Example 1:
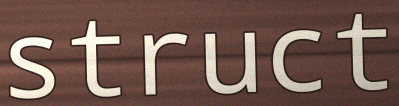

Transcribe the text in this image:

struct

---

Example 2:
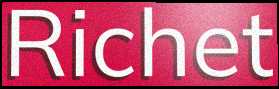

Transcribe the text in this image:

Richet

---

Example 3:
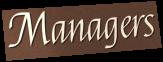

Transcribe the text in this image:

Managers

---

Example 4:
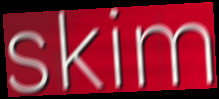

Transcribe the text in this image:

skim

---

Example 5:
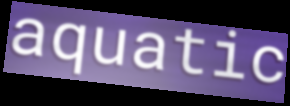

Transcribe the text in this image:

aquatic